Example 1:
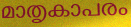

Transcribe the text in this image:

മാതൃകാപരം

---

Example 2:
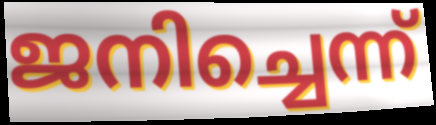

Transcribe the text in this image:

ജനിച്ചെന്ന്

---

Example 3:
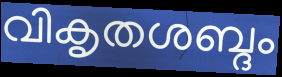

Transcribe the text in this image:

വികൃതശബ്ദം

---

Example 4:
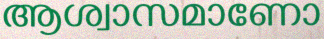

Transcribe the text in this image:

ആശ്വാസമാണോ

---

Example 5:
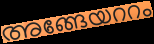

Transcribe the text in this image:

അങ്ങേയററം